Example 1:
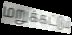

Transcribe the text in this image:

மறுக்கட்டும்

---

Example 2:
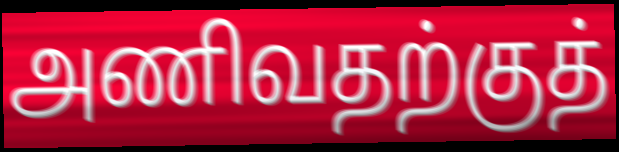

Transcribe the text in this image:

அணிவதற்குத்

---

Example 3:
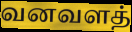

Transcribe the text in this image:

வனவளத்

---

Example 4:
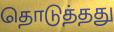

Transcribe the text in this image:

தொடுத்தது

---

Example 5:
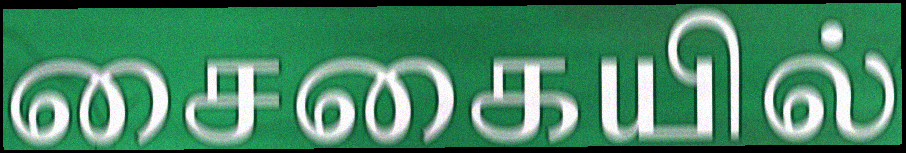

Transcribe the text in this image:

சைகையில்